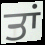
ਤਾਂ